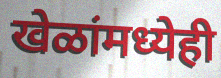
खेळांमध्येही